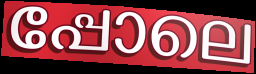
പ്പോലെ